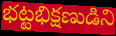
భట్టభిక్షణుడిని